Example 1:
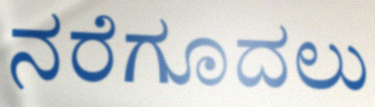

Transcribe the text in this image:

ನರೆಗೂದಲು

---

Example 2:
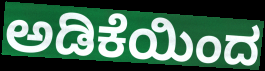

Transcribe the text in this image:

ಅಡಿಕೆಯಿಂದ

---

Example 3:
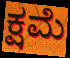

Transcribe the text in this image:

ಕ್ಷಮೆ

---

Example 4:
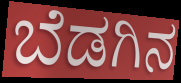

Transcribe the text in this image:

ಬೆಡಗಿನ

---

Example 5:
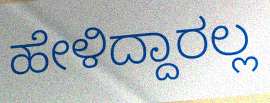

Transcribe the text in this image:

ಹೇಳಿದ್ದಾರಲ್ಲ